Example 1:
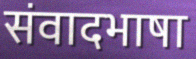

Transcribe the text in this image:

संवादभाषा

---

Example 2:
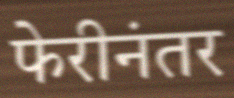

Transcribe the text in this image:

फेरीनंतर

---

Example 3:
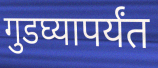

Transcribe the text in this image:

गुडघ्यापर्यंत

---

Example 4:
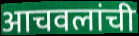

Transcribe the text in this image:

आचवलांची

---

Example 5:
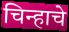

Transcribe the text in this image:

चिन्हाचे